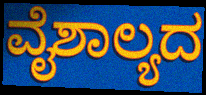
ವೈಶಾಲ್ಯದ